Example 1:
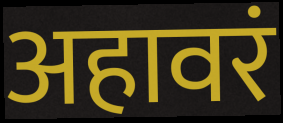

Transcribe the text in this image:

अहावरं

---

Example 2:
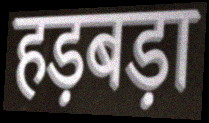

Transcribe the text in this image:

हड़बड़ा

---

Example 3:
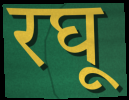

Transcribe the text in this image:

रघू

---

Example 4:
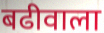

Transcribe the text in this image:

बढीवाला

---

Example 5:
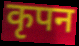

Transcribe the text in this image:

कृपन